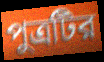
পুত্রটির